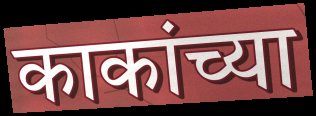
काकांच्या